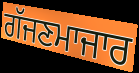
ਗੱਜਣਮਾਜਾਰ